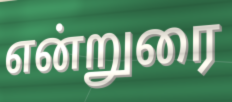
என்றுரை